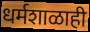
धर्मशाळाही